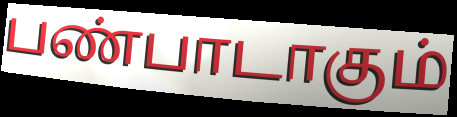
பண்பாடாகும்